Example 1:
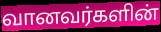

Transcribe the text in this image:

வானவர்களின்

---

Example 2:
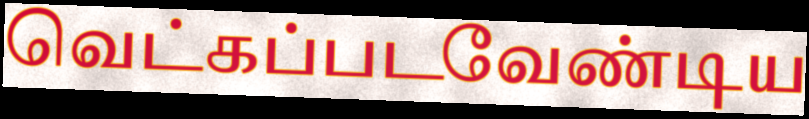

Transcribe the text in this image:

வெட்கப்படவேண்டிய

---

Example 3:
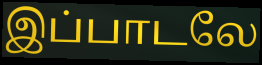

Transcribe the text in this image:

இப்பாடலே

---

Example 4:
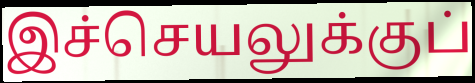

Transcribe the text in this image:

இச்செயலுக்குப்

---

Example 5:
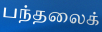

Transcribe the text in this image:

பந்தலைக்